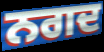
ਨਗਦ